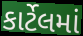
કાર્ટેલમાં